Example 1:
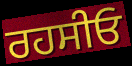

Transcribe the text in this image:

ਰਹਸੀਓ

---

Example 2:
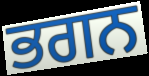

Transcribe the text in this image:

ਭਗਨ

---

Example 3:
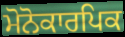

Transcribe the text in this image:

ਮੋਨੋਕਾਰਪਿਕ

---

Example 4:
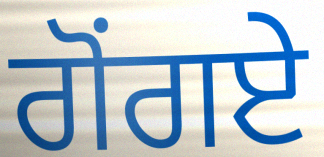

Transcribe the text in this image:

ਗੋਂਗਏ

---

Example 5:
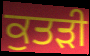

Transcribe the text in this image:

ਕੁਤੜੀ